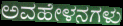
ಅವಹೇಳನಗಳು